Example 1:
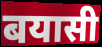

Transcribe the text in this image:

बयासी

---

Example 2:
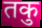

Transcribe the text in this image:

तकु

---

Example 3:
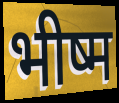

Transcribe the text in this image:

भीष्म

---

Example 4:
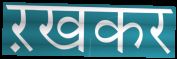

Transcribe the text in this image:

ऱखकर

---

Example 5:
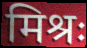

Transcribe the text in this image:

मिश्रः